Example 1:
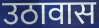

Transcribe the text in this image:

उठावास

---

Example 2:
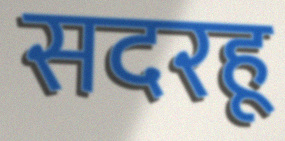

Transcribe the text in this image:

सदरहू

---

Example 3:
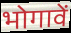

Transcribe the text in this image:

भोगावें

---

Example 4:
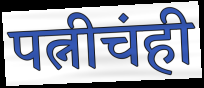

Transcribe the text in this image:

पत्नीचंही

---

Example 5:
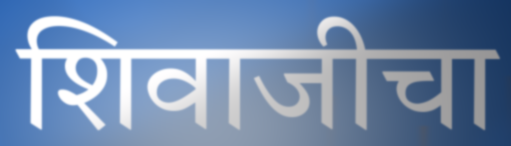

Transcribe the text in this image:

शिवाजीचा